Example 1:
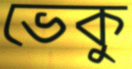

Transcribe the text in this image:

ভেকু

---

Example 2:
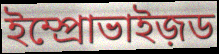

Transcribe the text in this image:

ইম্প্রোভাইজ়ড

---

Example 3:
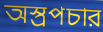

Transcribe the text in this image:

অস্ত্রপচার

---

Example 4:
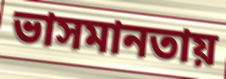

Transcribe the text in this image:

ভাসমানতায়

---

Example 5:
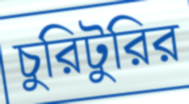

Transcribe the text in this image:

চুরিটুরির